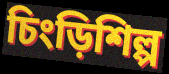
চিংড়িশিল্প